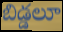
బిడ్డలూ